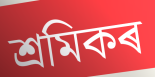
শ্ৰমিকৰ